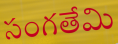
సంగతేమి